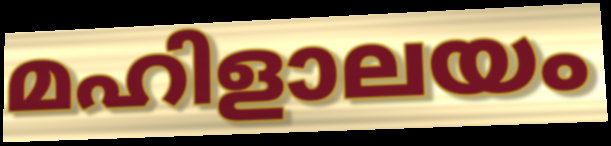
മഹിളാലയം